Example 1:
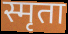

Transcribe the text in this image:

स्मृता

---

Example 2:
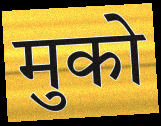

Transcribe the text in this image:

मुको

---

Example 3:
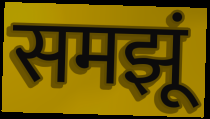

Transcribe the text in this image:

समझूं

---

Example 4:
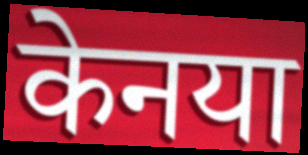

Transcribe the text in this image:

केनया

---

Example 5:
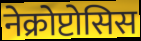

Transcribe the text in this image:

नेक्रोप्टोसिस